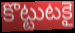
కొట్టుటకై